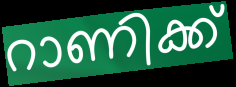
റാണിക്ക്